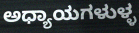
ಅಧ್ಯಾಯಗಳುಳ್ಳ